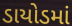
ડાયોડમાં